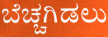
ಬೆಚ್ಚಗಿಡಲು